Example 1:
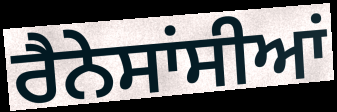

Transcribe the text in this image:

ਰੈਨੇਸਾਂਸੀਆਂ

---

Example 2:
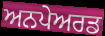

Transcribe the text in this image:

ਅਨਪੇਅਰਡ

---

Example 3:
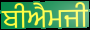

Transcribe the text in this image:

ਬੀਐਮਜੀ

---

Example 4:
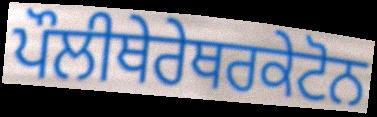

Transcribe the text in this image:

ਪੌਲੀਥੇਰੇਥਰਕੇਟੋਨ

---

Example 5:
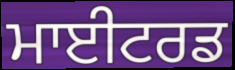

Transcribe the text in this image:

ਮਾਈਟਰਡ